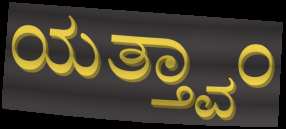
ಯತ್ತ್ವಾಂ